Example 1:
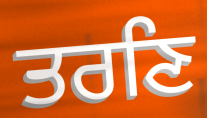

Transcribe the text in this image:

ਤਰਣਿ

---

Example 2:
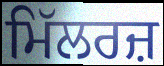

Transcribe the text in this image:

ਮਿੱਲਰਜ਼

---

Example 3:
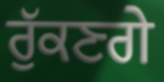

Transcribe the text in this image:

ਰੁੱਕਣਗੇ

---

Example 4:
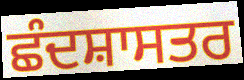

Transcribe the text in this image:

ਛੰਦਸ਼ਾਸਤਰ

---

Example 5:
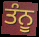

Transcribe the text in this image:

ਤੰਨੂ